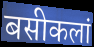
बसीकलां